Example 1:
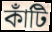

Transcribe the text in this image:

কাঁটি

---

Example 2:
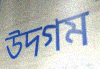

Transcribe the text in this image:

উদগম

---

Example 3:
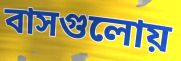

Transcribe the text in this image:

বাসগুলোয়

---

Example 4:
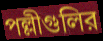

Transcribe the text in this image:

পল্লীগুলির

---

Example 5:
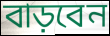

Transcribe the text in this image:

বাড়বেন